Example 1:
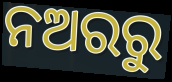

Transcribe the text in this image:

ନଅରରୁ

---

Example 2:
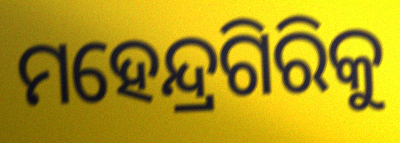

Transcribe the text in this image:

ମହେନ୍ଦ୍ରଗିରିକୁ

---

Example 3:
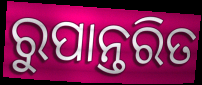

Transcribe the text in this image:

ରୁପାନ୍ତରିତ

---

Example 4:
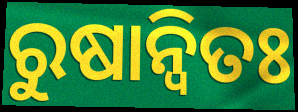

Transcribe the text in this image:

ରୁଷାନ୍ଵିତଃ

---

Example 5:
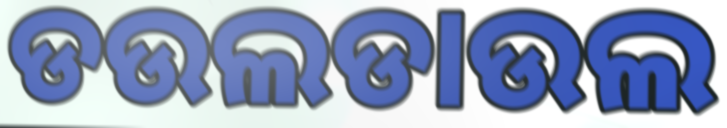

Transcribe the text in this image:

ଡଉଲଡାଉଲ